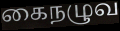
கைநழுவ